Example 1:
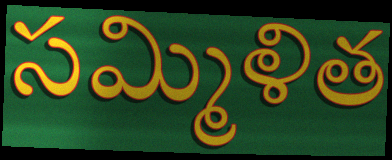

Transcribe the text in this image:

సమ్మిళిత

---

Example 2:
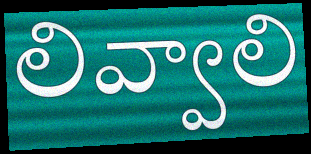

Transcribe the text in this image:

లివ్వాలి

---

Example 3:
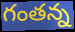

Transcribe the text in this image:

గంతన్న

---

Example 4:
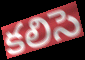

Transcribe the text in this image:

కలిసె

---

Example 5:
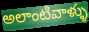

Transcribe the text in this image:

అలాంటివాళ్ళు